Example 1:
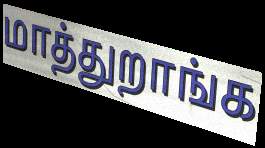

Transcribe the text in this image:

மாத்துறாங்க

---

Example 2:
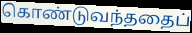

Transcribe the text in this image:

கொண்டுவந்ததைப்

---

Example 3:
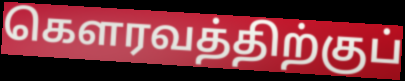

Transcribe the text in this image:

கௌரவத்திற்குப்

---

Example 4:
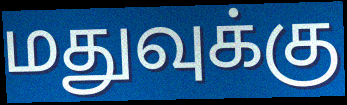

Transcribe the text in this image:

மதுவுக்கு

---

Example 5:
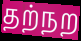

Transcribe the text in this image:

தற்நற